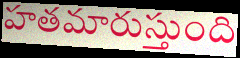
హతమారుస్తుంది